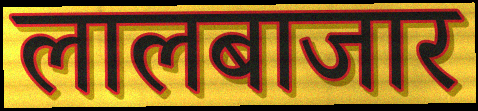
लालबाजार